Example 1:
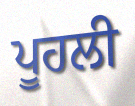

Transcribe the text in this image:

ਪੂਹਲੀ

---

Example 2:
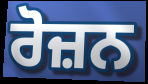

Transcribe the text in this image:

ਰੋਜ਼ਨ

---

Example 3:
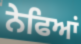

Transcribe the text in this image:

ਨੇਫਿਆਂ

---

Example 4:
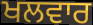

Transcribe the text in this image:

ਖਲਵਾਰ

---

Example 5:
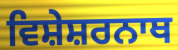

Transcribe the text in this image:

ਵਿਸ਼ੇਸ਼ਰਨਾਥ